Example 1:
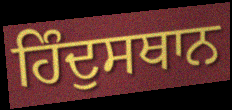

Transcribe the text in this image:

ਹਿੰਦੁਸਥਾਨ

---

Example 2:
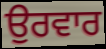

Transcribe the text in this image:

ਉਰਵਾਰ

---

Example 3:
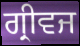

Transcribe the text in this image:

ਗ੍ਰੀਵਜ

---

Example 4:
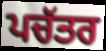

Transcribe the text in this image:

ਪਚੱਤਰ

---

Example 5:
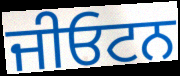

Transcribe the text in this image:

ਜੀਓਟਨ